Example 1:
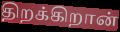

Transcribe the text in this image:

திறக்கிறான்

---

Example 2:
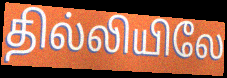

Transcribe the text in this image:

தில்லியிலே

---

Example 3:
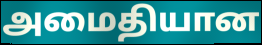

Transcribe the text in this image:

அமைதியான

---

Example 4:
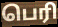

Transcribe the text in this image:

பெரி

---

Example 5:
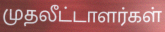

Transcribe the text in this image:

முதலீட்டாளர்கள்